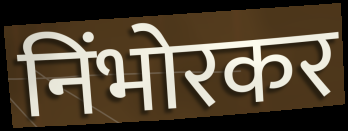
निंभोरकर